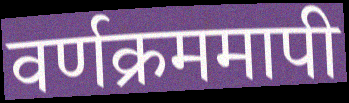
वर्णक्रममापी